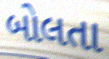
બોલતા